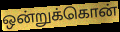
ஒன்றுக்கொன்